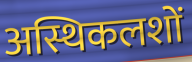
अस्थिकलशों